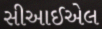
સીઆઈએલ